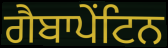
ਗੈਬਾਪੇਂਟਿਨ